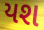
યશ